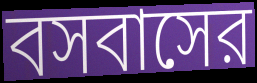
বসবাসের